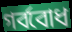
গর্ববোধ